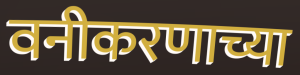
वनीकरणाच्या